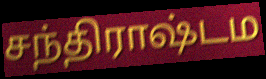
சந்திராஷ்டம